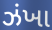
ઝંખા